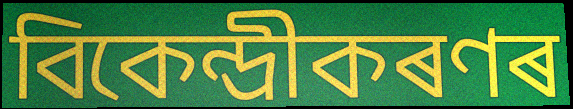
বিকেন্দ্ৰীকৰণৰ